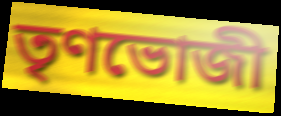
তৃণভোজী